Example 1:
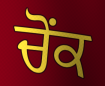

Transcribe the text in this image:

ਚੋਂਕ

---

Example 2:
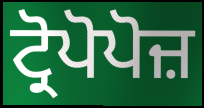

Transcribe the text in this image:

ਟ੍ਰੋਪੋਪੋਜ਼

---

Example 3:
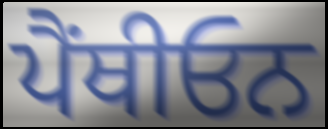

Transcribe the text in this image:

ਪੈਂਥੀਓਨ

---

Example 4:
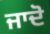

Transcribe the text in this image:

ਜਾਦੋ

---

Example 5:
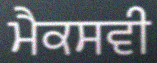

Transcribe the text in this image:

ਮੈਕਸਵੀ